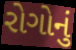
રોગોનું